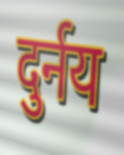
दुर्नय